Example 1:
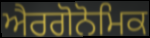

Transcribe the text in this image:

ਐਰਗੋਨੋਮਿਕ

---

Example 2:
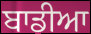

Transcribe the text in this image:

ਬਾਡੀਆ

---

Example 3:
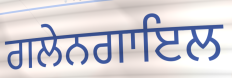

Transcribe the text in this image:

ਗਲੇਨਗਾਇਲ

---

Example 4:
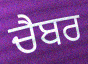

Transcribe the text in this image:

ਚੈਬਰ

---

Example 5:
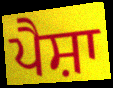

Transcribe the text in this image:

ਪੈਸ਼ਾ